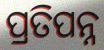
ପ୍ରତିପନ୍ନ